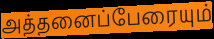
அத்தனைப்பேரையும்